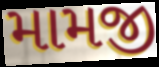
મામજી